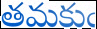
తమకుఁ